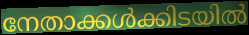
നേതാക്കൾക്കിടയിൽ